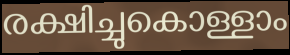
രക്ഷിച്ചുകൊള്ളാം